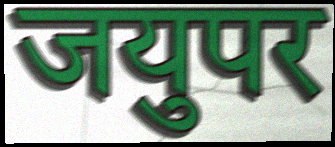
जयुपर